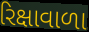
રિક્ષાવાળા